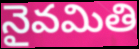
నైవమితి